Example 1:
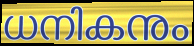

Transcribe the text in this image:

ധനികനും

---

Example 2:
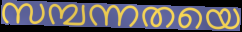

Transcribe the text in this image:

സമ്പന്നതയെ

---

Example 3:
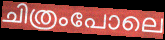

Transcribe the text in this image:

ചിത്രംപോലെ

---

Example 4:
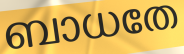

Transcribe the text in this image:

ബാധതേ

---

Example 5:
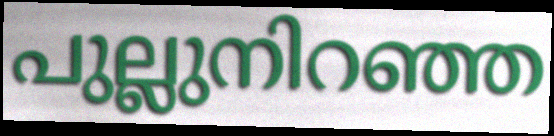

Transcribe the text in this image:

പുല്ലുനിറഞ്ഞ